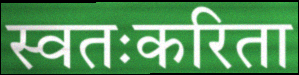
स्वतःकरिता